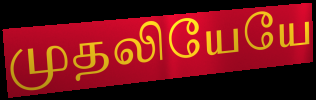
முதலியேயே